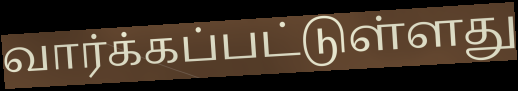
வார்க்கப்பட்டுள்ளது